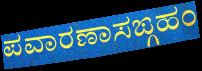
ಪವಾರಣಾಸಙ್ಗಹಂ